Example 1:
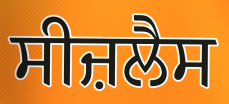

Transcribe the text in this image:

ਸੀਜ਼ਲੈਸ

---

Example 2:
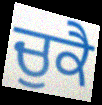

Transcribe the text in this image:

ਚੁਕੈ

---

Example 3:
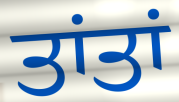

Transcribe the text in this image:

ਤਾਂਤਾਂ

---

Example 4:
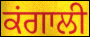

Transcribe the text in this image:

ਕਂਗਾਲੀ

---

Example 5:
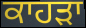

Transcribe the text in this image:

ਕਾਹੜਾ